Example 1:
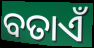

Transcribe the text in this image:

ବତାଏଁ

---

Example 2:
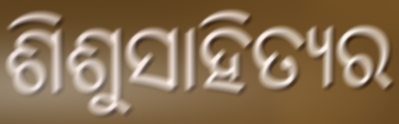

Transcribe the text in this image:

ଶିଶୁସାହିତ୍ୟର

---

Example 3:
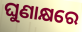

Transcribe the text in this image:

ଘୁଣାକ୍ଷରେ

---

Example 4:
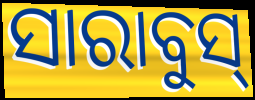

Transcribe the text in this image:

ସାରାବୁସ୍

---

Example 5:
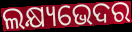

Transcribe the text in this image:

ଲକ୍ଷ୍ୟଭେଦର